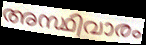
അസ്ഥിവാരം